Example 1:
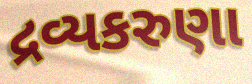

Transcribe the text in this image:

દ્રવ્યકરુણા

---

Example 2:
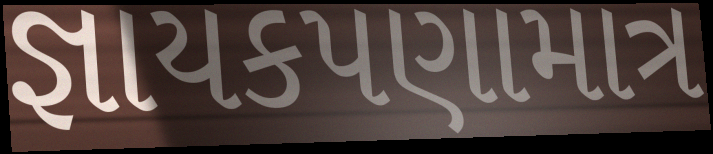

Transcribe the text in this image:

જ્ઞાયકપણામાત્ર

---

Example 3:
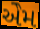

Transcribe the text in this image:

એેમ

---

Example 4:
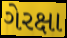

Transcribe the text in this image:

ગેરક્ષા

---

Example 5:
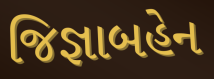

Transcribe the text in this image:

જિજ્ઞાબહેન